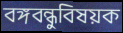
বঙ্গবন্ধুবিষয়ক